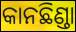
କାନଛିଣ୍ଡା